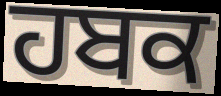
ਹਬਕ